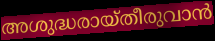
അശുദ്ധരായ്തീരുവാൻ